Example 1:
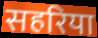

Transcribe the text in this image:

सहरिया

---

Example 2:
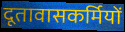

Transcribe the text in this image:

दूतावासकर्मियों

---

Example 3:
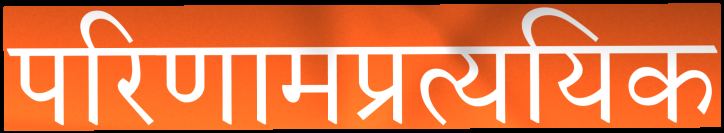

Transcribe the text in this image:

परिणामप्रत्ययिक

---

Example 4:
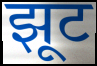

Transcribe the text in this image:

झूट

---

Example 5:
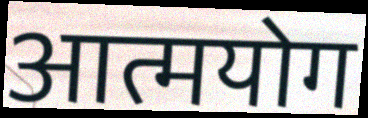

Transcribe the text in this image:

आत्मयोग